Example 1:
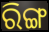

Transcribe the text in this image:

ରିଙ୍ଗ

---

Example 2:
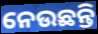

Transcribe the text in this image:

ନେଉଛନ୍ତି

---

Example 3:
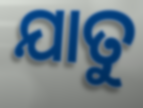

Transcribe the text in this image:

ଯାତୁ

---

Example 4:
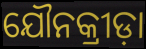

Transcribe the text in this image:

ଯୌନକ୍ରୀଡ଼ା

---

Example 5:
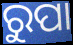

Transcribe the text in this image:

ରୁପା